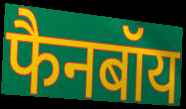
फैनबॉय